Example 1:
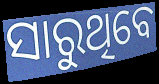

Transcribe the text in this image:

ସାରୁଥିବେ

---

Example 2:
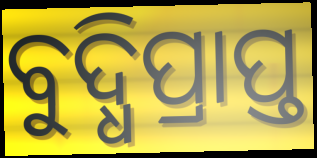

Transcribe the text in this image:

ବୁଦ୍ଧିପ୍ରାପ୍ତ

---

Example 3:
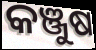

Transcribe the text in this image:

କଞ୍ଜୁଷ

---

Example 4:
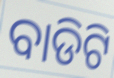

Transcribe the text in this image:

ବାଡିଟି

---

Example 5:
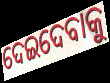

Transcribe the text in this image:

ଦେଇଦେବାକୁ